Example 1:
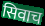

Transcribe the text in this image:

सिवाच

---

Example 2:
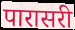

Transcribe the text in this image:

पारासरी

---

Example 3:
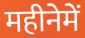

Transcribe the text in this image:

महीनेमें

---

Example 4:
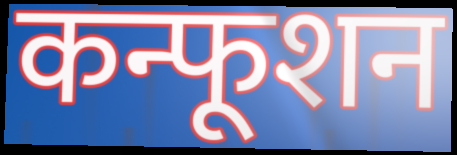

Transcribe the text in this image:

कन्फूशन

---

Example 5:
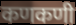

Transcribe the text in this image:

कणकणी